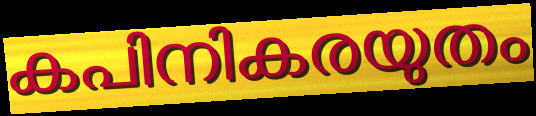
കപിനികരയുതം